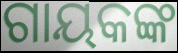
ଗାୟକଙ୍କ